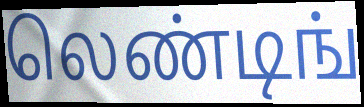
லெண்டிங்